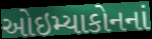
ઓઇમ્યાકોનનાં